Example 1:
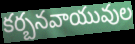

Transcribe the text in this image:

కర్బనవాయువుల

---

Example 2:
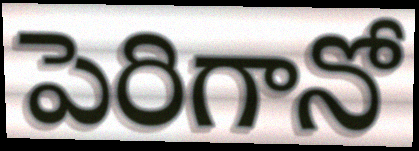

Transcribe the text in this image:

పెరిగానో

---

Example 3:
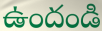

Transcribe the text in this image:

ఉందండి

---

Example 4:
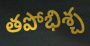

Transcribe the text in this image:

తపోభిశ్చ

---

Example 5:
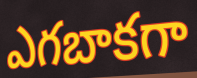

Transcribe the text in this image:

ఎగబాకగా